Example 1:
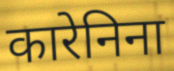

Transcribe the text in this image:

कारेनिना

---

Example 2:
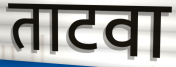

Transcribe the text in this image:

ताटवा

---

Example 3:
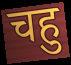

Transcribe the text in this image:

चहु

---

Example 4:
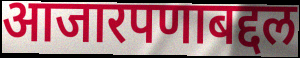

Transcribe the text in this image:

आजारपणाबद्दल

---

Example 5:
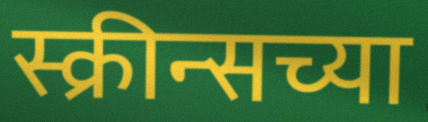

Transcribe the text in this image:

स्क्रीन्सच्या